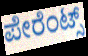
ಪೇರೆಂಟ್ಸ್